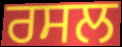
ਰਸਲ